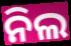
ନିଲ